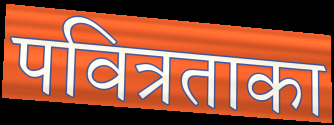
पवित्रताका